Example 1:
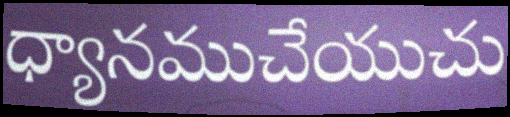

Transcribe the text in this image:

ధ్యానముచేయుచు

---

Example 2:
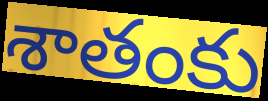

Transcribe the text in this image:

శాతంకు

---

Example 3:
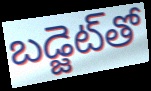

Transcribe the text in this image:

బడ్జెట్‌తో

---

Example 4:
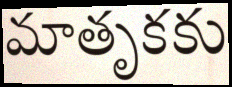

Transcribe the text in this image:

మాతృకకు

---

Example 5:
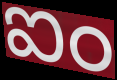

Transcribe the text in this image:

ఐం